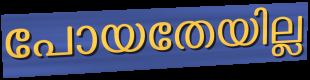
പോയതേയില്ല